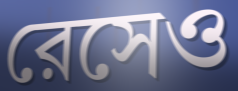
রেসেও